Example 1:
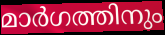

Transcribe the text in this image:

മാർഗത്തിനും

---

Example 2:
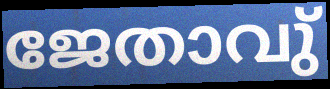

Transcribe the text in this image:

ജേതാവു്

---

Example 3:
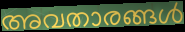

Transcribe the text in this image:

അവതാരങ്ങൾ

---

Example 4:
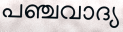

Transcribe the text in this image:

പഞ്ചവാദ്യ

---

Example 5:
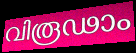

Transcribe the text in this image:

വിരൂഢാം